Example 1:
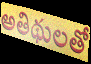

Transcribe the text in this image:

అతిథులతో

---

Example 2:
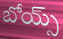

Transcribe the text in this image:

బోయ్స్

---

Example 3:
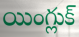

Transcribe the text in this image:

యింగ్లుక్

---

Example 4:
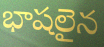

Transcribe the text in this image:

భాషలైన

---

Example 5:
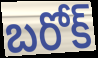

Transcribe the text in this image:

బరోక్